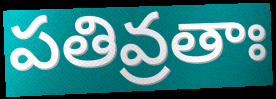
పతివ్రతాః